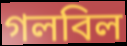
গলবিল